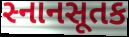
સ્નાનસૂતક